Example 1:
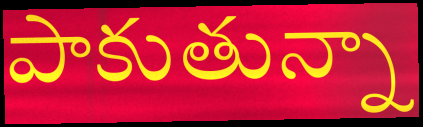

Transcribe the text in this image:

పాకుతున్నా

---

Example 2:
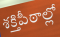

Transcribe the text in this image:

శక్తిపీఠాల్లో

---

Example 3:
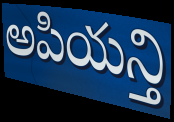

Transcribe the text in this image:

అపియన్తి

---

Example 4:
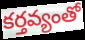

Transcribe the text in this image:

కర్తవ్యంతో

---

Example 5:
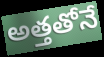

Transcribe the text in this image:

అత్తతోనే